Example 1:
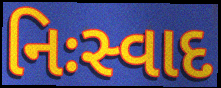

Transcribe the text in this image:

નિઃસ્વાદ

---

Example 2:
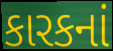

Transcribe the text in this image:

કારકનાં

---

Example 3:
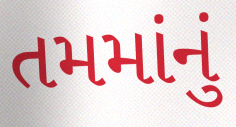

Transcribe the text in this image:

તમમાંનું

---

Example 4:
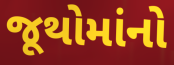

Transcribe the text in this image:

જૂથોમાંનો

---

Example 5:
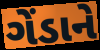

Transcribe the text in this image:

ગેંડાને